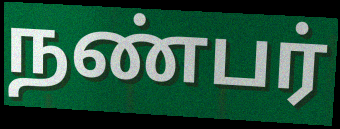
நண்பர்